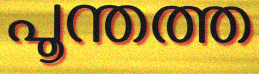
പൂന്തത്ത